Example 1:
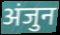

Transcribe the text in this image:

अंजुन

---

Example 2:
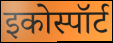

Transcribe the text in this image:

इकोस्पॉर्ट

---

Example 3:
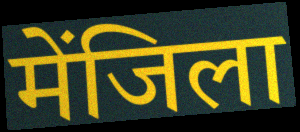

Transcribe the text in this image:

मेंजिला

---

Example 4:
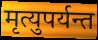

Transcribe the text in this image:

मृत्युपर्यन्त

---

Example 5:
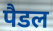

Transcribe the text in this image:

पैडल